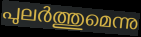
പുലർത്തുമെന്നു